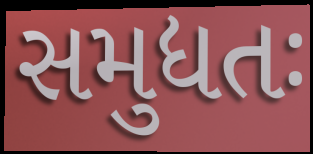
સમુદ્યતઃ